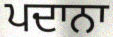
ਪਦਾਨਾ